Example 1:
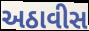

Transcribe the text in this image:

અઠાવીસ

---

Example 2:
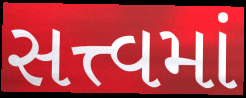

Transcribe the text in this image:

સત્ત્વમાં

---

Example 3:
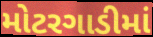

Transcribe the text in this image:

મોટરગાડીમાં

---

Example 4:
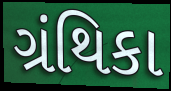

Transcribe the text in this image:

ગ્રંથિકા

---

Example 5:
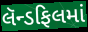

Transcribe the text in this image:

લૅન્ડફિલમાં